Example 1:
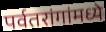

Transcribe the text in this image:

पर्वतरांगांमध्ये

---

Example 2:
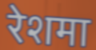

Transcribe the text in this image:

रेशमा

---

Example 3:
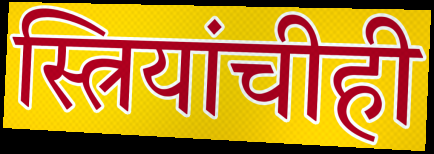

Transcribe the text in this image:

स्त्रियांचीही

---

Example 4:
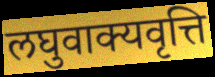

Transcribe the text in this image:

लघुवाक्यवृत्ति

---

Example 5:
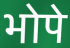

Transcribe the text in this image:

भोपे